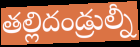
తల్లిదండ్రుల్నీ